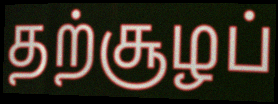
தற்சூழப்